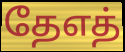
தேஎத்